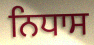
ਨਿਧਾਸ